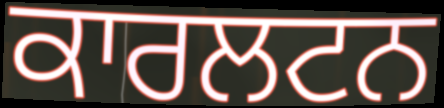
ਕਾਰਲਟਨ